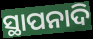
ସ୍ଥାପନାଦି